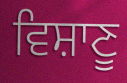
ਵਿਸ਼ਾਣੂ